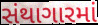
સંથાગારમાં